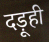
दड़ूही